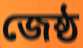
জেষ্ঠ